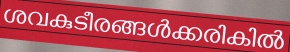
ശവകുടീരങ്ങൾക്കരികിൽ